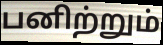
பனிற்றும்